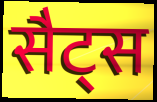
सैट्स